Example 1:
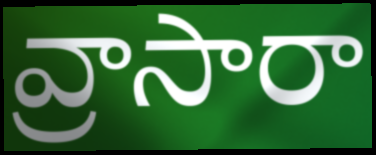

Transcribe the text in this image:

వ్రాసారా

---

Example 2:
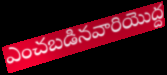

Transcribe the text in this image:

ఎంచబడినవారియొద్ద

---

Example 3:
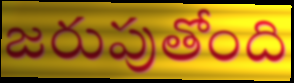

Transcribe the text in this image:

జరుపుతోంది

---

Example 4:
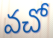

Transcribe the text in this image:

వచో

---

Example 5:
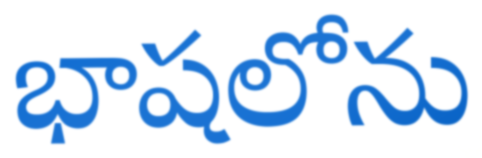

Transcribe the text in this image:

భాషలోను